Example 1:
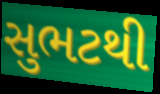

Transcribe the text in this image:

સુભટથી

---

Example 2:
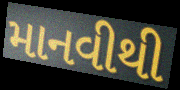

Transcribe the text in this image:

માનવીથી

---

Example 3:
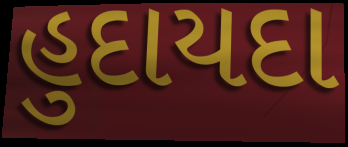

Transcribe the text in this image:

હુદાયદા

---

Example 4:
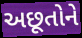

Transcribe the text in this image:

અછૂતોને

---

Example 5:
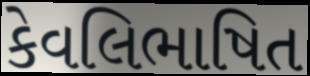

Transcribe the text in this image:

કેવલિભાષિત